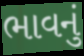
ભાવનું